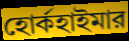
হোর্কহাইমার